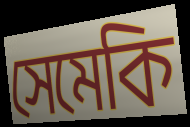
সেমেকি